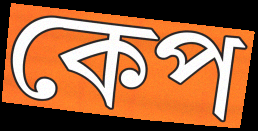
কেপ